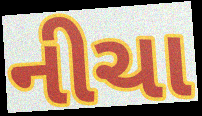
નીચા